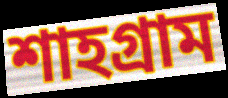
শাহগ্রাম